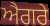
ਐਗਰੇ